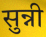
सुन्नी